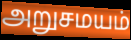
அறுசமயம்